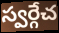
స్వర్గేచ